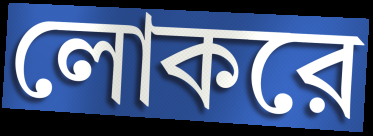
লোকরে